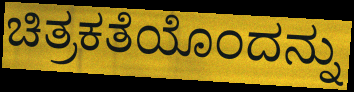
ಚಿತ್ರಕತೆಯೊಂದನ್ನು